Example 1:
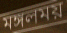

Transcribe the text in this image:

মঙ্গলময়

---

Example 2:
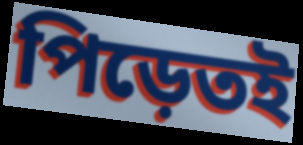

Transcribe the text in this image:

পিড়েতই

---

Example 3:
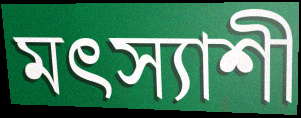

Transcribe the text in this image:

মৎস্যাশী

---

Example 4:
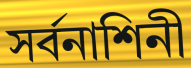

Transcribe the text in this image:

সর্বনাশিনী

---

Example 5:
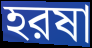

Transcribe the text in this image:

হরষা